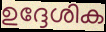
ഉദ്ദേശിക